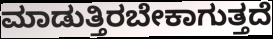
ಮಾಡುತ್ತಿರಬೇಕಾಗುತ್ತದೆ